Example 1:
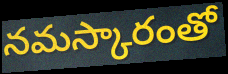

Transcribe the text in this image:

నమస్కారంతో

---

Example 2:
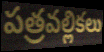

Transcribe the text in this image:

పత్రవల్లికలు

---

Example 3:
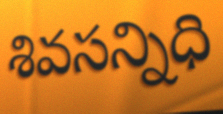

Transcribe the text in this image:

శివసన్నిధి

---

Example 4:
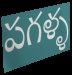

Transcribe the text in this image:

పగళ్ళ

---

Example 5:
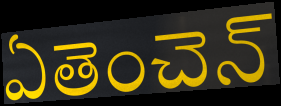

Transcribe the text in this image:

ఏతెంచెన్